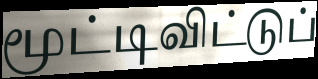
மூட்டிவிட்டுப்